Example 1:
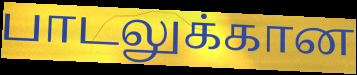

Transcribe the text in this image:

பாடலுக்கான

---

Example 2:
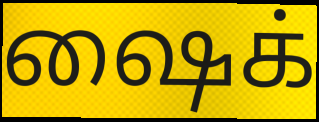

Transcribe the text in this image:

ஷைக்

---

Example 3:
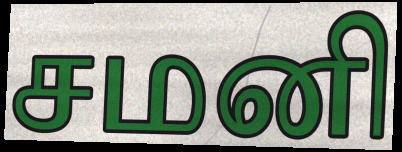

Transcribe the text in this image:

சமனி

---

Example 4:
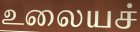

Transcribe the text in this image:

உலையச்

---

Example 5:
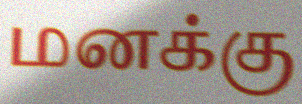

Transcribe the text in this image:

மனக்கு